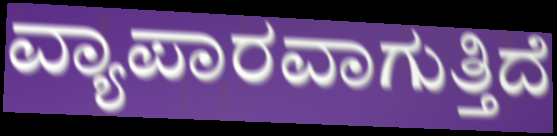
ವ್ಯಾಪಾರವಾಗುತ್ತಿದೆ